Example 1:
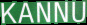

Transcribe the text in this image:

KANNU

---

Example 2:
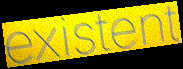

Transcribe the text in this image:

existent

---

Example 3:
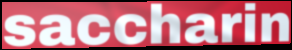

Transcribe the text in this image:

saccharin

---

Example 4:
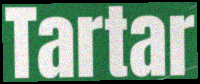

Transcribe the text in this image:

Tartar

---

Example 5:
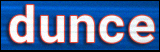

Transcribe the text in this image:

dunce